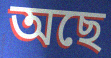
অছে